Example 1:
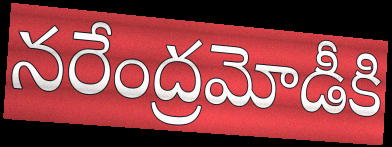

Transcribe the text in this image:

నరేంద్రమోడీకి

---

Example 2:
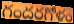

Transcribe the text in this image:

గందరగోళం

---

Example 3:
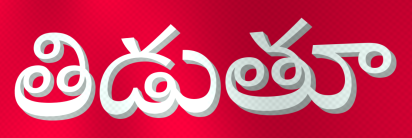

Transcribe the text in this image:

తిడుతూ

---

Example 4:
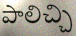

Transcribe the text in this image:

పాలిచ్చి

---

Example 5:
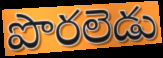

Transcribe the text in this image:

పొరలెడు